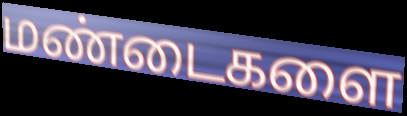
மண்டைகளை